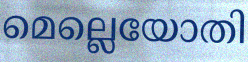
മെല്ലെയോതി